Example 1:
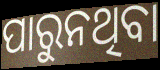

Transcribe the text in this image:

ପାରୁନଥିବା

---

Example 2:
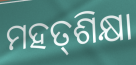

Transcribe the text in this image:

ମହତ୍‌ଶିକ୍ଷା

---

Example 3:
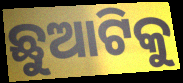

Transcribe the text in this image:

ଛୁଆଟିକୁ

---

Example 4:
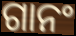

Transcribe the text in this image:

ଗାନଂ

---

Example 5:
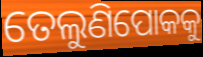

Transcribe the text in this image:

ତେଲୁଣିପୋକକୁ